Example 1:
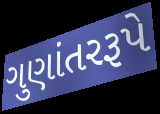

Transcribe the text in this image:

ગુણાંતરરૂપે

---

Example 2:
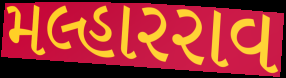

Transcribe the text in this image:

મલ્હારરાવ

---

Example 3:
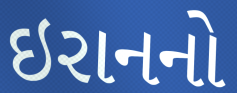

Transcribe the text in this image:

ઇરાનનો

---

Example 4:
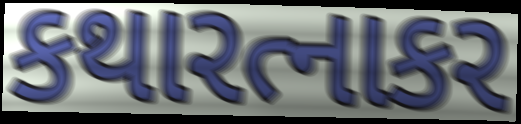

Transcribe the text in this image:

કથારત્નાકર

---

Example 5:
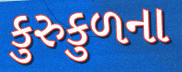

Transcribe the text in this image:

કુરુકુળના